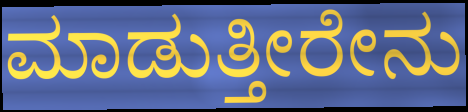
ಮಾಡುತ್ತೀರೇನು